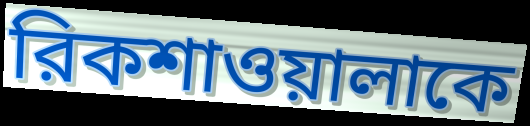
রিকশাওয়ালাকে